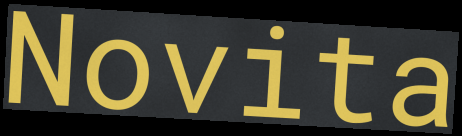
Novita